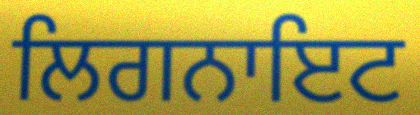
ਲਿਗਨਾਇਟ